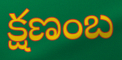
క్షణంబ